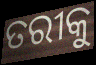
ତରୀକୁ